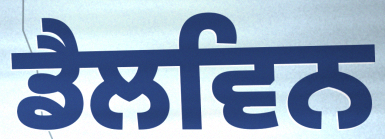
ਡੈਲਵਿਨ